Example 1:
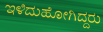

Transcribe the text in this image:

ಇಳಿದುಹೋಗಿದ್ದರು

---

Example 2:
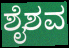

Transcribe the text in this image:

ಶೈಶವ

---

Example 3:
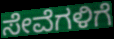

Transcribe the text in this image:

ಸೇವೆಗಳಿಗೆ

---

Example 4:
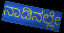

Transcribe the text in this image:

ನಾಡಿನಲ್ಲೇ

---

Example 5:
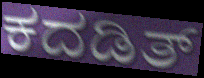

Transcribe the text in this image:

ಕದಡಿತ್